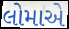
લોમાએ